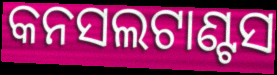
କନସଲଟାଣ୍ଟସ